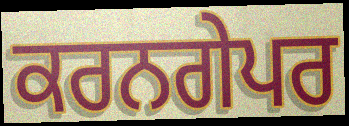
ਕਰਨਗੇਪਰ